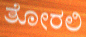
ತೋರಲಿ